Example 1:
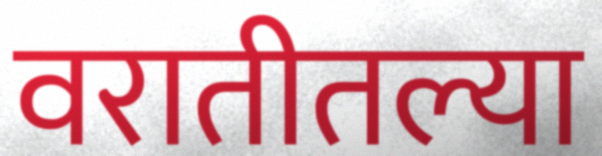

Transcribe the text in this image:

वरातीतल्या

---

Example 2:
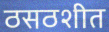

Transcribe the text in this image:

ठसठशीत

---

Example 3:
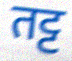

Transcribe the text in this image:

तट्ट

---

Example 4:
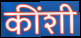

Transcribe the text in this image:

कींशी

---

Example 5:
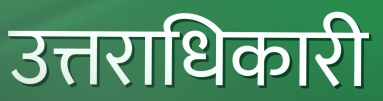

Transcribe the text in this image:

उत्तराधिकारी